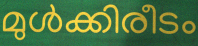
മുൾക്കിരീടം